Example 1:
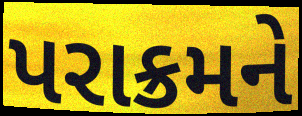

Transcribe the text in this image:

પરાક્રમને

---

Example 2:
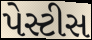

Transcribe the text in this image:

પેસ્ટીસ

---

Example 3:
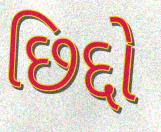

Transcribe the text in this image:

છિદ્દો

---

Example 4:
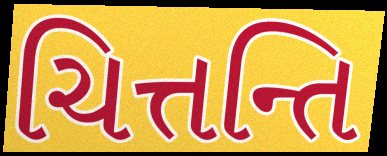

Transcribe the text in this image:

ચિત્તન્તિ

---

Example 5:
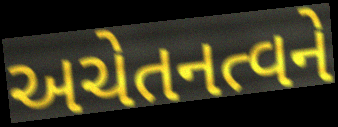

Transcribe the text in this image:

અચેતનત્વને